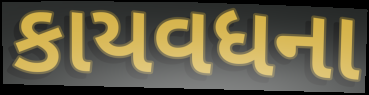
કાયવધના